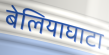
बेलियाघाटा